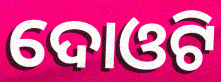
ଦୋଓଟି